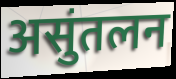
असुंतलन